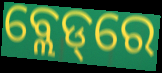
ବ୍ଲେଡ୍‌ରେ